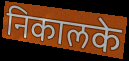
निकालके